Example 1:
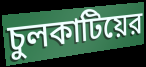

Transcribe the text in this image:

চুলকাটিয়ের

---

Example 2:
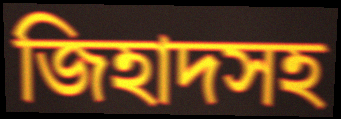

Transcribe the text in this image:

জিহাদসহ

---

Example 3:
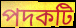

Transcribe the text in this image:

পদকটি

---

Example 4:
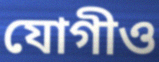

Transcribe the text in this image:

যোগীও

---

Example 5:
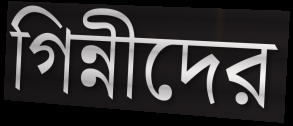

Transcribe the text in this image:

গিন্নীদের